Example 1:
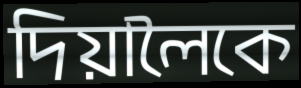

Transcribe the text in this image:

দিয়ালৈকে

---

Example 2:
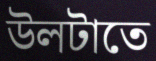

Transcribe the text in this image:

উলটাতে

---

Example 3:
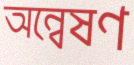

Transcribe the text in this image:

অন্বেষণ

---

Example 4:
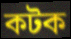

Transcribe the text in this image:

কটক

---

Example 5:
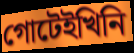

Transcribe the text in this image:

গোটেইখিনি